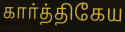
கார்த்திகேய